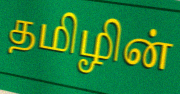
தமிழின்